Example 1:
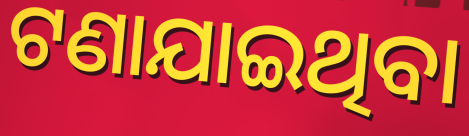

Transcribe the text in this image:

ଟଣାଯାଇଥିବା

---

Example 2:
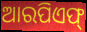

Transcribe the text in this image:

ଆରପିଏଫ୍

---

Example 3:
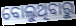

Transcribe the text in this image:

ବୋଲୁଥିବାରୁ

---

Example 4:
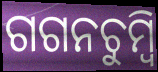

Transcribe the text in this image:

ଗଗନଚୁମ୍ବି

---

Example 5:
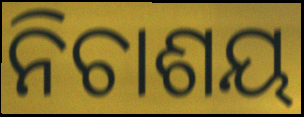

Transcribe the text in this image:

ନିଚାଶୟ